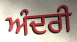
ਅੰਦਰੀ